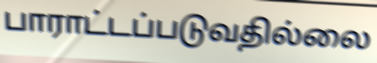
பாராட்டப்படுவதில்லை